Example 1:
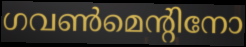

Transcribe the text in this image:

ഗവൺമെന്റിനോ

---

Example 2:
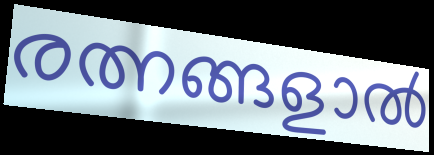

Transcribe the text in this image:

രത്നങ്ങളാൽ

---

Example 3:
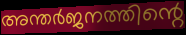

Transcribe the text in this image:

അന്തർജനത്തിന്റെ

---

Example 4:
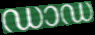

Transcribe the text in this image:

ഡാഡ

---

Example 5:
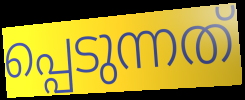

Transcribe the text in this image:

പ്പെടുന്നത്